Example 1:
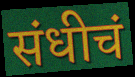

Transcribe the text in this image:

संधीचं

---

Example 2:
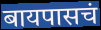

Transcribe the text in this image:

बायपासचं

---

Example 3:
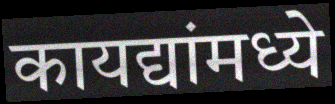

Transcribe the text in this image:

कायद्यांमध्ये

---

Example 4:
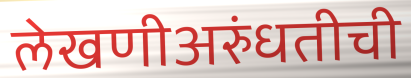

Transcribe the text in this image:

लेखणीअरुंधतीची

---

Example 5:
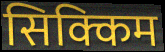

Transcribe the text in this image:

सिक्किम